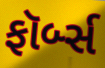
ફૉર્બ્સ